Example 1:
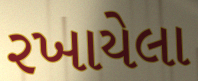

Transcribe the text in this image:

રખાયેલા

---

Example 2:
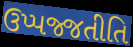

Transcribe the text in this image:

ઉપ્પજ્જતીતિ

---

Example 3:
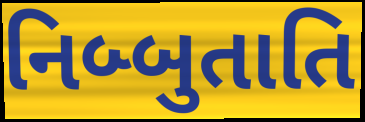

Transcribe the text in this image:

નિબ્બુતાતિ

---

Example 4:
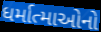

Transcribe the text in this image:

ધર્માત્માઓનો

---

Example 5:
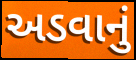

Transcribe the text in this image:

અડવાનું